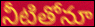
నీటితోనూ